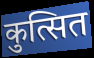
कुत्सित